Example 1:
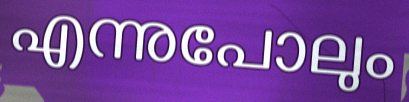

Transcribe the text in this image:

എന്നുപോലും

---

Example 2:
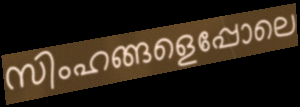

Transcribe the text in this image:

സിംഹങ്ങളെപ്പോലെ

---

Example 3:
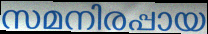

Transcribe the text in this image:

സമനിരപ്പായ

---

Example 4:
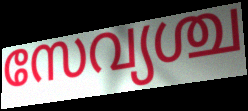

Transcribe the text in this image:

സേവ്യശ്ച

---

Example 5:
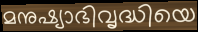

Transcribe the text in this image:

മനുഷ്യാഭിവൃദ്ധിയെ